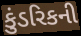
કુંડરિકની